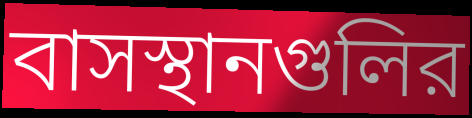
বাসস্থানগুলির